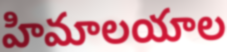
హిమాలయాల